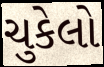
ચુકેલો